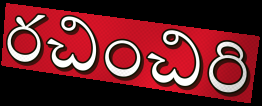
రచించిరి